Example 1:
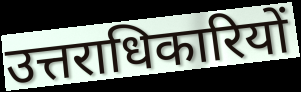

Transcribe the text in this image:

उत्तराधिकारियों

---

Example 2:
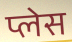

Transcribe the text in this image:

प्लेस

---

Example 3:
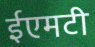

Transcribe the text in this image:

ईएमटी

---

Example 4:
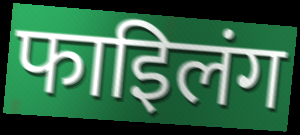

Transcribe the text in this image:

फाइिलंग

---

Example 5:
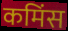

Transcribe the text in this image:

कमिंस